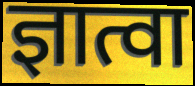
ज्ञात्वा